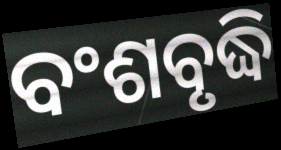
ବଂଶବୃଦ୍ଧି